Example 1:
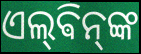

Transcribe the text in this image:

ଏଲ୍‌ଵିନ୍‌ଙ୍କ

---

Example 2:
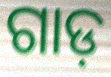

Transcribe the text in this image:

ଗାଡ଼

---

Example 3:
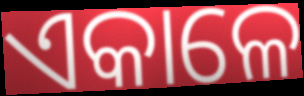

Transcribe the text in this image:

ଏକାଳେ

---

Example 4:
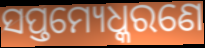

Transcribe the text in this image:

ସପ୍ତମ୍ୟେଧ୍କରଣେ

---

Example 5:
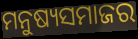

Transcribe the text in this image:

ମନୁଷ୍ୟସମାଜର